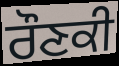
ਰੌਣਕੀ